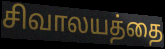
சிவாலயத்தை